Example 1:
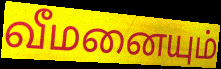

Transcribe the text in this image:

வீமனையும்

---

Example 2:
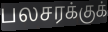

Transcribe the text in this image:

பலசரக்குக்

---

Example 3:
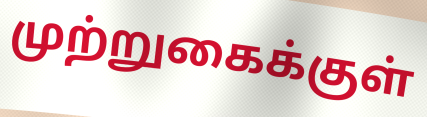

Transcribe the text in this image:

முற்றுகைக்குள்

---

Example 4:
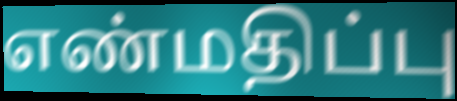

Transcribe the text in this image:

எண்மதிப்பு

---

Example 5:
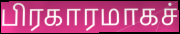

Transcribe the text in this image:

பிரகாரமாகச்